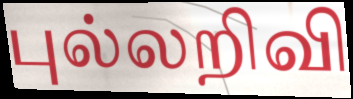
புல்லறிவி